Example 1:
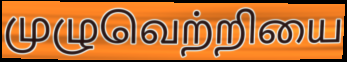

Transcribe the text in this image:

முழுவெற்றியை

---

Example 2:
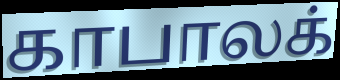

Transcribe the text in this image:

காபாலக்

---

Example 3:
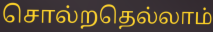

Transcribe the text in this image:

சொல்றதெல்லாம்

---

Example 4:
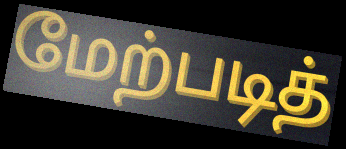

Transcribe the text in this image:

மேற்படித்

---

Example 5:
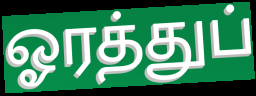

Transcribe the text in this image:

ஓரத்துப்